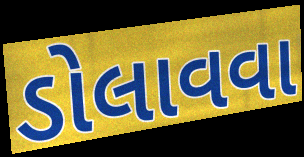
ડોલાવવા